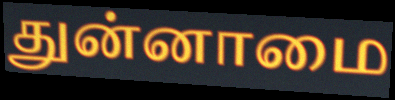
துன்னாமை